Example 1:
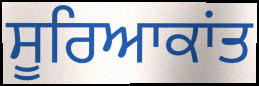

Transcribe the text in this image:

ਸੂਰਿਆਕਾਂਤ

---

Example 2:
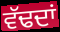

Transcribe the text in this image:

ਵੱਢਦਾਂ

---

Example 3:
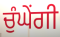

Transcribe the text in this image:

ਚੁੰਘੇਂਗੀ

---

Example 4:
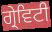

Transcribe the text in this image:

ਗ੍ਰੇਵਿਟੀ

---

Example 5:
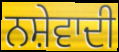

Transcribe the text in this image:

ਨਸ਼ੇਵਾਦੀ